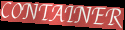
CONTAINER